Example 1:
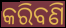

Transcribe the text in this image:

କରିବଣି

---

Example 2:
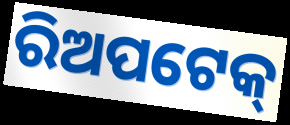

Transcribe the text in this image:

ରିଅପଟେକ୍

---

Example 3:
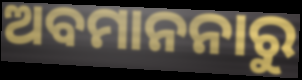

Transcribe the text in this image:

ଅବମାନନାରୁ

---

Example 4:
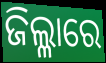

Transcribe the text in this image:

ଜିଲ୍ଳାରେ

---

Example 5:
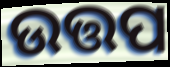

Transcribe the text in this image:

ଉତ୍ତପ